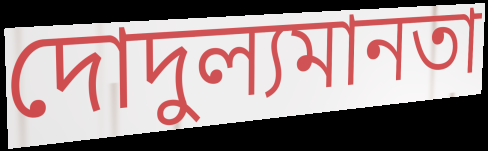
দোদুল্যমানতা